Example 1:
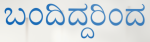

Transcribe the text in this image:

ಬಂದಿದ್ದರಿಂದ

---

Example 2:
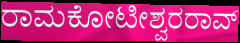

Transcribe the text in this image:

ರಾಮಕೋಟೀಶ್ವರರಾವ್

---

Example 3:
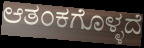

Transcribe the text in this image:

ಆತಂಕಗೊಳ್ಳದೆ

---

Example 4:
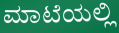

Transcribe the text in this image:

ಮಾಟೆಯಲ್ಲಿ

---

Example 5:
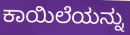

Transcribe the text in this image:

ಕಾಯಿಲೆಯನ್ನು